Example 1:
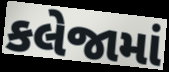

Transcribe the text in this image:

કલેજામાં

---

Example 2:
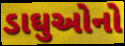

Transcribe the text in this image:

ડાઘુઓનો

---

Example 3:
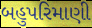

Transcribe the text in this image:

બહુપરિમાણી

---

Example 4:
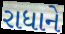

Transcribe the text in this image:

રાધાને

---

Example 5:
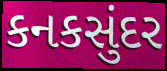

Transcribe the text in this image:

કનકસુંદર